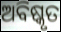
ଅବିଷ୍କୃତ